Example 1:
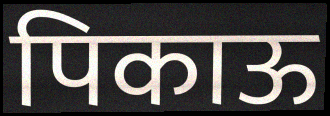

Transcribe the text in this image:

पिकाऊ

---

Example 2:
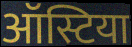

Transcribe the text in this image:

ऑस्टिया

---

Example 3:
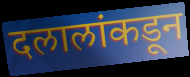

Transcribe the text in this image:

दलालांकडून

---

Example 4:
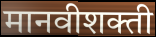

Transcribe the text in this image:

मानवीशक्ती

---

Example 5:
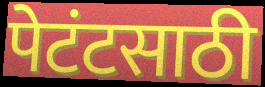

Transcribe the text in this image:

पेटंटसाठी